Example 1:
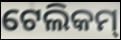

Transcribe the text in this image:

ଟେଲିକମ୍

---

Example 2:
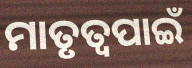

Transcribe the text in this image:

ମାତୃତ୍ୱପାଇଁ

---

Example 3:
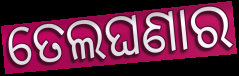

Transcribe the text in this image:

ତେଲଘଣାର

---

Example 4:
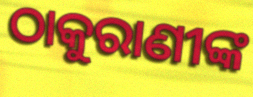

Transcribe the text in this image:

ଠାକୁରାଣୀଙ୍କ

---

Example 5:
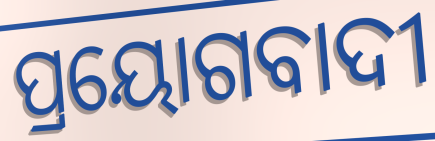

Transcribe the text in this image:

ପ୍ରୟୋଗବାଦୀ